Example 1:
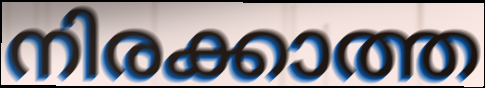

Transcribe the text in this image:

നിരക്കാത്ത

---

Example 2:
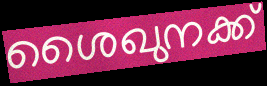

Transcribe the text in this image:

ശൈഖുനക്ക്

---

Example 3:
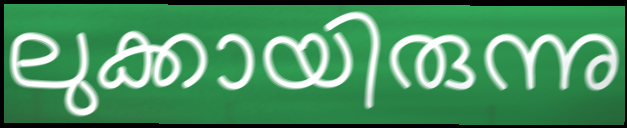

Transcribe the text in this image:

ലുക്കായിരുന്നു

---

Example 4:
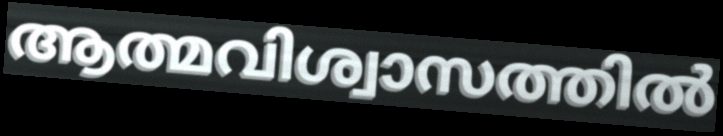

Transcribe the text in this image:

ആത്മവിശ്വാസത്തിൽ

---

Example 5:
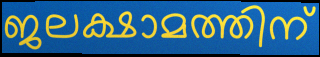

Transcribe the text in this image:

ജലക്ഷാമത്തിന്